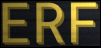
ERF